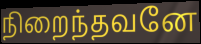
நிறைந்தவனே